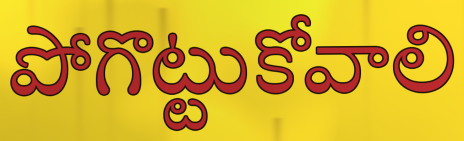
పోగొట్టుకోవాలి